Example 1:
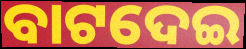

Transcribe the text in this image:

ବାଟଦେଇ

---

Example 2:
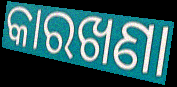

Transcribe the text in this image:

କାରଖଣା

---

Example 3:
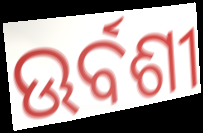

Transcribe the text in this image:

ଊର୍ବଶୀ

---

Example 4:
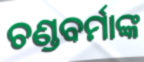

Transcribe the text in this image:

ଚଣ୍ଡବର୍ମାଙ୍କ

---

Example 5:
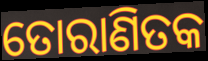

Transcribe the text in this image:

ତୋରାଣିତକ